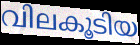
വിലകൂടിയ